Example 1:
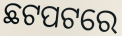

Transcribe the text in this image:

ଛଟପଟରେ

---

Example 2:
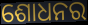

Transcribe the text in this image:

ଶୋଧନର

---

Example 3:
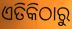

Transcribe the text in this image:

ଏତିକିଠାରୁ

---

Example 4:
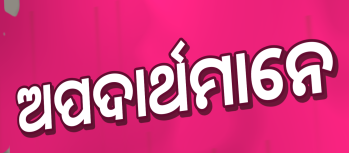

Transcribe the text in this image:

ଅପଦାର୍ଥମାନେ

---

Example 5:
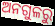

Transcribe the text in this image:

ଅନଗୁଳରୁ